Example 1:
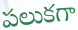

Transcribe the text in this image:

పలుకగా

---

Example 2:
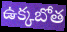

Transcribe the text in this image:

ఉక్కబోత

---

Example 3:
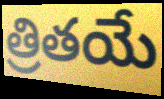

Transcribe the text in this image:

త్రితయే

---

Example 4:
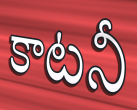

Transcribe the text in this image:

కాటనీ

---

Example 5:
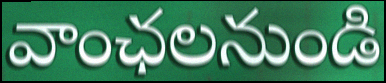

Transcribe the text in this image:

వాంఛలనుండి